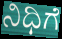
ನಿಧಿಗೆ